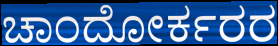
ಚಾಂದೋರ್ಕರರ